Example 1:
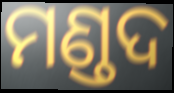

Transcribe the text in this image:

ମଣ୍ଡଦ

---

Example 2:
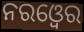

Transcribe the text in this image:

ନରଓ୍ବେର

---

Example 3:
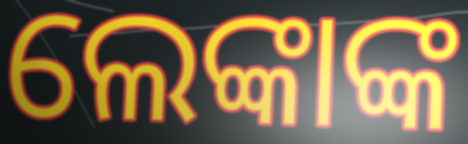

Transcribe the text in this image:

ଲେଙ୍କାଙ୍କ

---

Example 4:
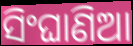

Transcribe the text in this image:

ସିଂଘାଣିଆ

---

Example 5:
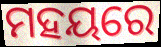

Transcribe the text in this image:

ମହୟରେ